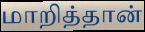
மாறித்தான்